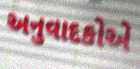
અનુવાદકોએ